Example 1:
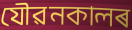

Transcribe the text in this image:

যৌৱনকালৰ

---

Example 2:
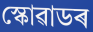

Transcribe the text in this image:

স্কোৱাডৰ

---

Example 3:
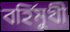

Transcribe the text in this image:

বৰ্হিমুখী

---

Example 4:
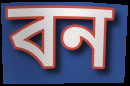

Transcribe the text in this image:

বন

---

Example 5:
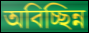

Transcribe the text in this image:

অবিচ্ছিন্ন